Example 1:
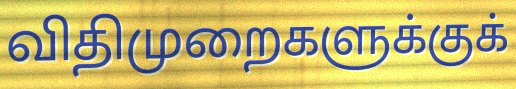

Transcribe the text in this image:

விதிமுறைகளுக்குக்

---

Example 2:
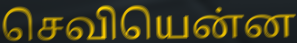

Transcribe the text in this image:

செவியென்ன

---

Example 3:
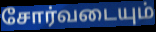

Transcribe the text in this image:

சோர்வடையும்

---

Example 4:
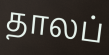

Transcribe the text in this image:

தாலப்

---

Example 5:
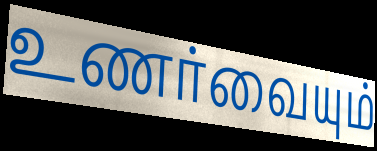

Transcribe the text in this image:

உணர்வையும்